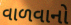
વાળવાનો